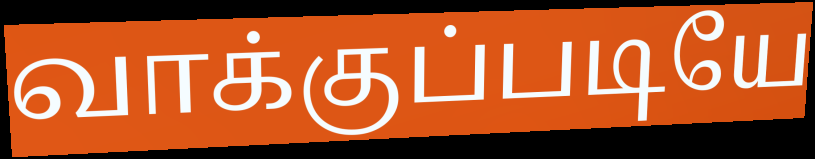
வாக்குப்படியே